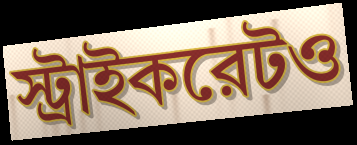
স্ট্রাইকরেটও